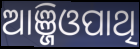
ଆଞ୍ଜିଓପାଥି